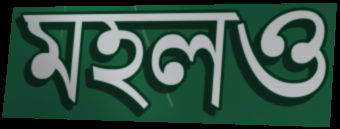
মহলও